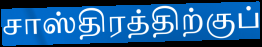
சாஸ்திரத்திற்குப்